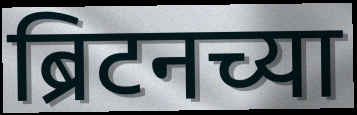
ब्रिटनच्या